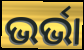
ଭର୍ଭା